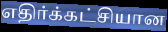
எதிர்க்கட்சியான